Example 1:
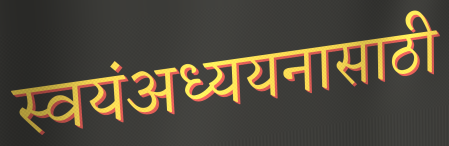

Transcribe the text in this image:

स्वयंअध्ययनासाठी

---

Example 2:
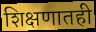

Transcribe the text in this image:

शिक्षणातही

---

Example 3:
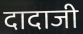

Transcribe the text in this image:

दादाजी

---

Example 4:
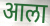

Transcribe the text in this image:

आला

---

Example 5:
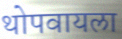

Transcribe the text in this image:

थोपवायला